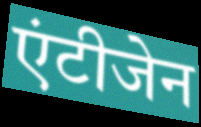
एंटीजेन